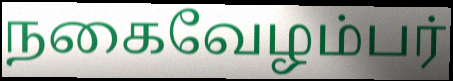
நகைவேழம்பர்